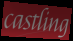
castling